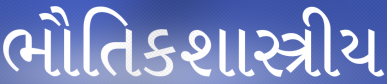
ભૌતિકશાસ્ત્રીય